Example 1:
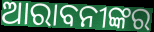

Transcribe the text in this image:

ଆରାବନୀଙ୍କର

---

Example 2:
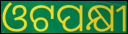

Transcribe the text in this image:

ଓଟପକ୍ଷୀ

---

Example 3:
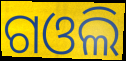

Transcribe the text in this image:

ଗଓଲି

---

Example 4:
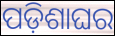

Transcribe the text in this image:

ପଡ଼ିଶାଘର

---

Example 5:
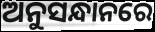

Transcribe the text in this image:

ଅନୁସନ୍ଧାନରେ